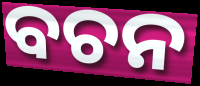
ବଚନ